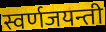
स्वर्णजयन्ती